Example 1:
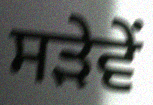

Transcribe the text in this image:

ਸੜੇਵੇਂ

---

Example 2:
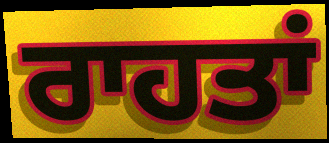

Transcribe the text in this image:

ਰਾਹਤਾਂ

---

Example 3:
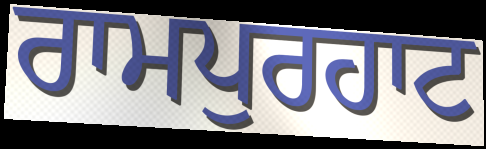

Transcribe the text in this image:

ਰਾਮਪੁਰਹਾਟ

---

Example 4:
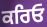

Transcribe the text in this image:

ਕਰਿਓ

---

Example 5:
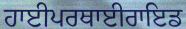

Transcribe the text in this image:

ਹਾਈਪਰਥਾਈਰਾਇਡ